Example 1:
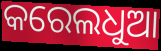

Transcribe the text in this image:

କରେଲଧୁଆ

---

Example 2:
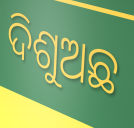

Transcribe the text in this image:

ଦିଶୁଅଛ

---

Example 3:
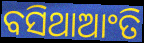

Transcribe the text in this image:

ବସିଥାଆଂତି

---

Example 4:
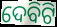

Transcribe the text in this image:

ଦେବିଟି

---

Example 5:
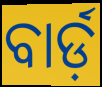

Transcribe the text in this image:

ବାର୍ଡ଼